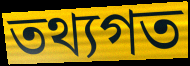
তথ্যগত